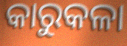
କାରୁକଳା